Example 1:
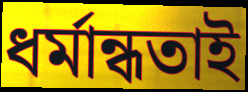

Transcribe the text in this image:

ধর্মান্ধতাই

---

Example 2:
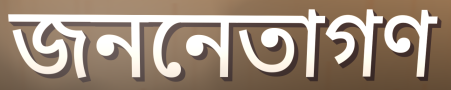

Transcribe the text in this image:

জননেতাগণ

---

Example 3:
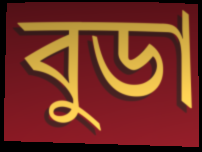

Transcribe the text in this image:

বুডা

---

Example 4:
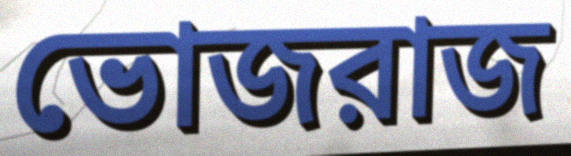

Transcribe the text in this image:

ভোজরাজ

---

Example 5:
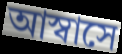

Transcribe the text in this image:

আস্বাসে